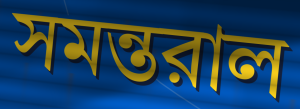
সমন্তরাল